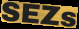
SEZs